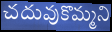
చదువుకొమ్మని